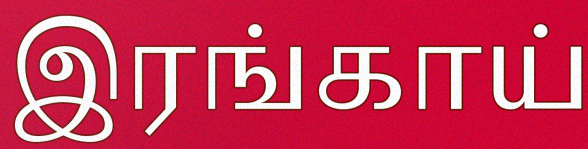
இரங்காய்